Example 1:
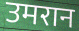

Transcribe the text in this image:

उमरान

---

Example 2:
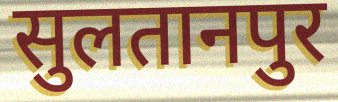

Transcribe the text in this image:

सुलतानपुर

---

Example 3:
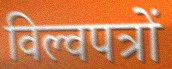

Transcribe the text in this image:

विल्वपत्रों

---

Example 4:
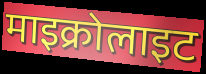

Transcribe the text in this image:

माइक्रोलाइट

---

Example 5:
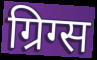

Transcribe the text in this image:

ग्रिग्स